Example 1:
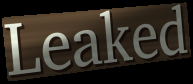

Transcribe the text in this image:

Leaked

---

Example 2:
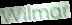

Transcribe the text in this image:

Wilmar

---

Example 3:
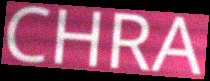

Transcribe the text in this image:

CHRA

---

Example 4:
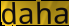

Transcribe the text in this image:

daha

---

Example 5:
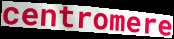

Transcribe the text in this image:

centromere